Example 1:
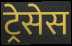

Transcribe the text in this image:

ट्रेसेस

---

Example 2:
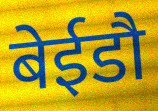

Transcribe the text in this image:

बेईडौ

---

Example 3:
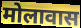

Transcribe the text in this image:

मोलावास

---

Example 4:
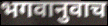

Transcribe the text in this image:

भगवानुवाच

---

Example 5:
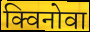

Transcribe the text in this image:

क्विनोवा